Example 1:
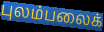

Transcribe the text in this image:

புலம்பலைக்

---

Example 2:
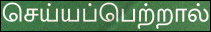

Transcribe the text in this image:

செய்யப்பெற்றால்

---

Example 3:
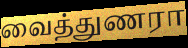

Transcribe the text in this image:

வைத்துணரா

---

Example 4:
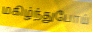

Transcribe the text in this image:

மகிழ்ந்துபோய்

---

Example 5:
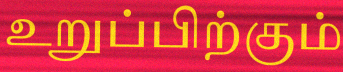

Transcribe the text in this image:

உறுப்பிற்கும்